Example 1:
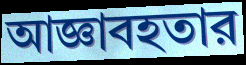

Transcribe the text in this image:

আজ্ঞাবহতার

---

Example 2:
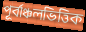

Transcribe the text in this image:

পূর্বাঞ্চলভিত্তিক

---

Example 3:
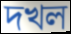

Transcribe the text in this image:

দখল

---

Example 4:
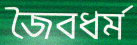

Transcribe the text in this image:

জৈবধর্ম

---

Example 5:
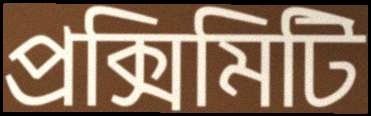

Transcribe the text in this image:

প্রক্সিমিটি